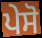
ਪੇਸੋ